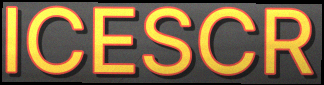
ICESCR